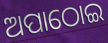
ଅପାଠୋଇ